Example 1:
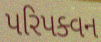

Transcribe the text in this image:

પરિપક્વન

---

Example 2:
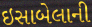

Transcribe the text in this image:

ઇસાબેલાની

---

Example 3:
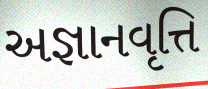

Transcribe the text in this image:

અજ્ઞાનવૃત્તિ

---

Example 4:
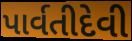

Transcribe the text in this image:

પાર્વતીદેવી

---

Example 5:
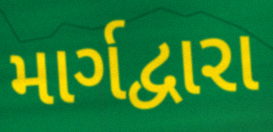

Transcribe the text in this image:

માર્ગદ્વારા